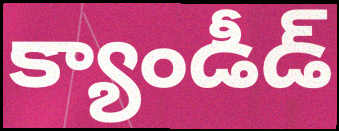
క్యాండీడ్